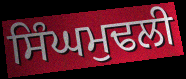
ਸਿੰਘਮੁਢਲੀ